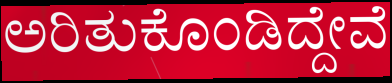
ಅರಿತುಕೊಂಡಿದ್ದೇವೆ